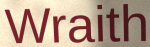
Wraith